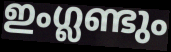
ഇംഗ്ലണ്ടും